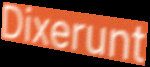
Dixerunt